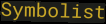
Symbolist